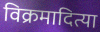
विक्रमादित्या